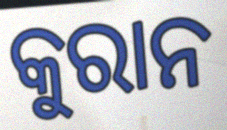
କୁରାନ